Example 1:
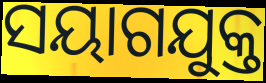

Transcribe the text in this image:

ସୟାଗଯୁକ୍ତ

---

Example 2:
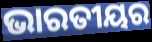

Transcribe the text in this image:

ଭାରତୀୟର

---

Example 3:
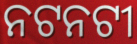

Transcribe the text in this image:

ନଟନଟୀ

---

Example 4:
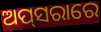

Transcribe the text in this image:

ଅପ୍‌ସରାରେ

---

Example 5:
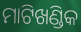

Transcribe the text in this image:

ମାଟିଖଣ୍ଡିକ